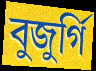
বুজুর্গি